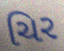
ચિર